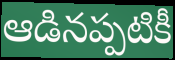
ఆడినప్పటికీ